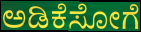
ಅಡಿಕೆಸೋಗೆ